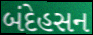
બંદેહસન